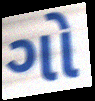
ગો